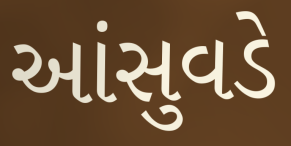
આંસુવડે